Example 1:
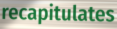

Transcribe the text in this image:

recapitulates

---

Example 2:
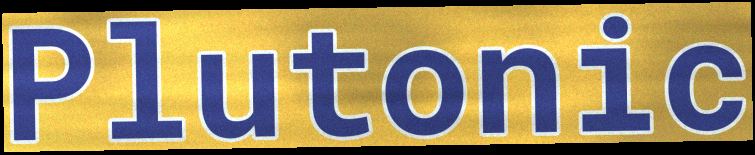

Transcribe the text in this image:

Plutonic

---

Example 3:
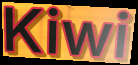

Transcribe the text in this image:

Kiwi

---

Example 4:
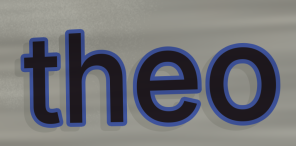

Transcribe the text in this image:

theo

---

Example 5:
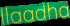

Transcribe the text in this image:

Ilaadha